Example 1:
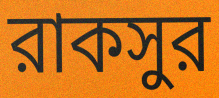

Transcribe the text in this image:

রাকসুর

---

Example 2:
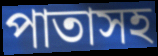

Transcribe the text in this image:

পাতাসহ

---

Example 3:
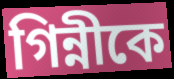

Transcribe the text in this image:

গিন্নীকে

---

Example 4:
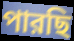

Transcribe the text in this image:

পারছি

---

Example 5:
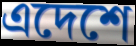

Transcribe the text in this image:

এদেশে